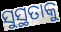
ସୁସ୍ଥତାକୁ